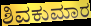
ಶಿವಕುಮಾರ